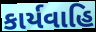
કાર્યવાહિ